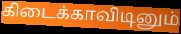
கிடைக்காவிடினும்